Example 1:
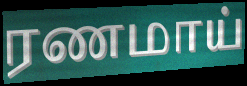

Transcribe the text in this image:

ரணமாய்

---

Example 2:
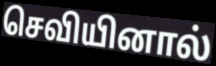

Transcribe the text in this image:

செவியினால்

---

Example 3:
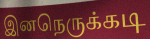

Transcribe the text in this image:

இனநெருக்கடி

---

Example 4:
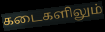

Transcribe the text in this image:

கடைகளிலும்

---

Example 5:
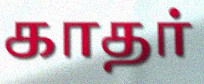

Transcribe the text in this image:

காதர்